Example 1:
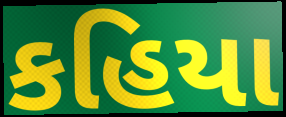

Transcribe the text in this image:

કહિયા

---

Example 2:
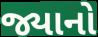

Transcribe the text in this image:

જ્યાનો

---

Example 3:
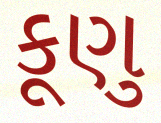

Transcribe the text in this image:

કૂણુ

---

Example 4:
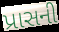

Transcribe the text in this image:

પ્રાસની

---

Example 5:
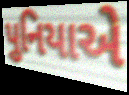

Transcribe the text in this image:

પુનિયાએ